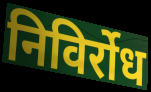
निविर्रोध